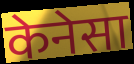
केनेसा